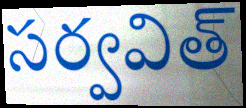
సర్వవిత్